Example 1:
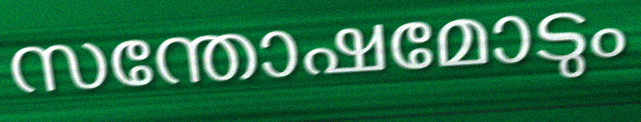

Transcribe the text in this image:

സന്തോഷമോടും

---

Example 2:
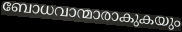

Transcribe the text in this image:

ബോധവാന്മാരാകുകയും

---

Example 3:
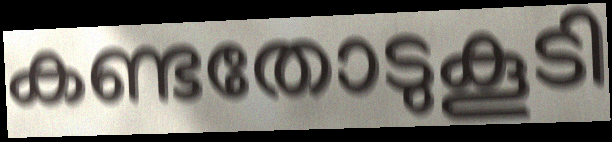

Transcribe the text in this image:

കണ്ടതോടുകൂടി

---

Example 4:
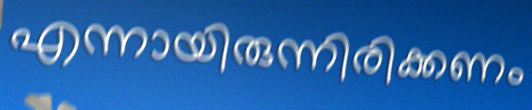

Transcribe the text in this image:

എന്നായിരുന്നിരിക്കണം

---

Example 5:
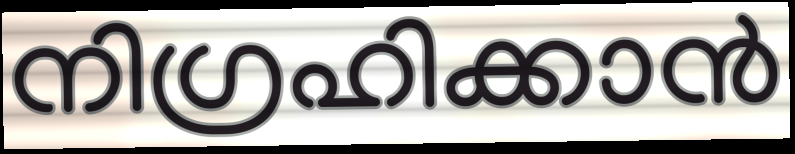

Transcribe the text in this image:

നിഗ്രഹിക്കാൻ